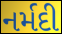
નર્મદી